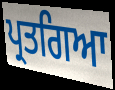
ਪ੍ਰਤਗਿਆ